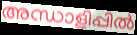
അന്ധാളിപ്പിൽ